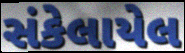
સંકેલાયેલ